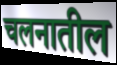
चलनातील